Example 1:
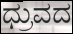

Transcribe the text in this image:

ಧ್ರುವದ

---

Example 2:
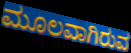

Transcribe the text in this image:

ಮೂಲವಾಗಿರುವ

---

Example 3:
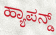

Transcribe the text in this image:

ಹ್ಯಾಪನ್ಡ್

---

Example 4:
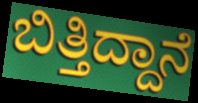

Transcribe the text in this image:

ಬಿತ್ತಿದ್ದಾನೆ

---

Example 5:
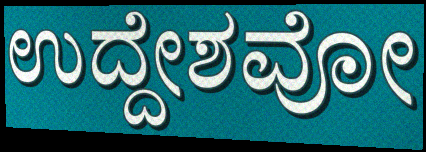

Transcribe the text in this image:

ಉದ್ದೇಶವೋ